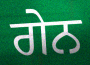
ਗੇਨ